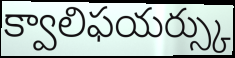
క్వాలిఫయర్స్కు